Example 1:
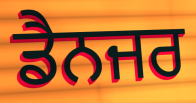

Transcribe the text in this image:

ਡੈਨਜਰ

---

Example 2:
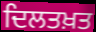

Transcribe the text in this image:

ਦਿਲਤਖ਼ਤ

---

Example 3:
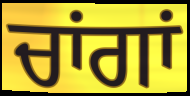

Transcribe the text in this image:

ਚਾਂਗਾਂ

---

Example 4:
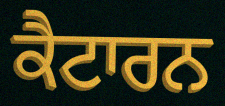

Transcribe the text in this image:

ਕੈਟਾਰਨ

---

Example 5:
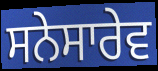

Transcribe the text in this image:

ਸਨੇਸਾਰੇਵ